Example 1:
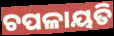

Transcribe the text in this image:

ଚପଳାୟତି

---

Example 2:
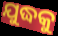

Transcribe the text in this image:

ଯୁଦ୍ଧକୁ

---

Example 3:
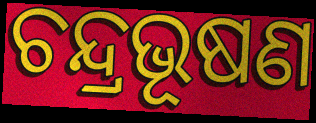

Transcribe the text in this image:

ଚନ୍ଦ୍ରଭୂଷଣ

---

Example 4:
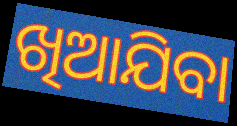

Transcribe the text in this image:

ଖିଆଯିବା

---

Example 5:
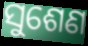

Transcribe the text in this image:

ସୁଶେଣ